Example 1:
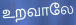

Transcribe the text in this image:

உறவாலே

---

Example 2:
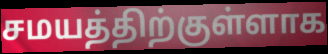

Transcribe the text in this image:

சமயத்திற்குள்ளாக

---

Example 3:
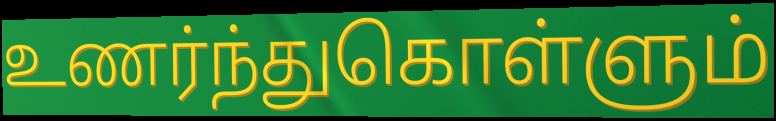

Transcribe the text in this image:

உணர்ந்துகொள்ளும்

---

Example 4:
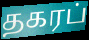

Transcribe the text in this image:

தகரப்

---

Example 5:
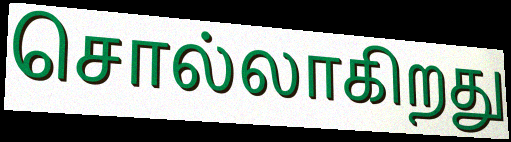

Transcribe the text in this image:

சொல்லாகிறது